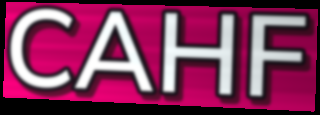
CAHF